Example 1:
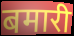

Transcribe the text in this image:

बमारी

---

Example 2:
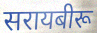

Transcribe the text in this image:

सरायबीरू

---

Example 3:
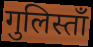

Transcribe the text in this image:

गुलिस्ताँ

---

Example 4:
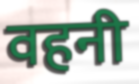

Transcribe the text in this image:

वहनी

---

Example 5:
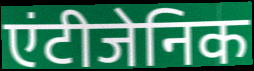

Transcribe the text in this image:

एंटीजेनिक